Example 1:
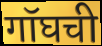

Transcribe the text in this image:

गॉघची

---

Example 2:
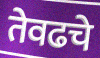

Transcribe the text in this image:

तेवढचे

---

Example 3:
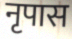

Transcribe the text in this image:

नृपास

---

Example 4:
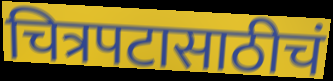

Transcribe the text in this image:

चित्रपटासाठीचं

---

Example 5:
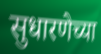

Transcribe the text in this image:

सुधारणेच्या